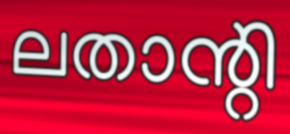
ലതാന്റി